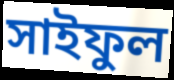
সাইফুল